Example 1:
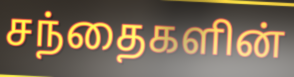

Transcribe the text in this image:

சந்தைகளின்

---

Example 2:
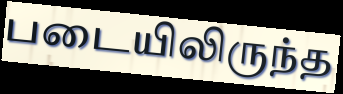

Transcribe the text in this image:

படையிலிருந்த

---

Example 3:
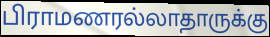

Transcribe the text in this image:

பிராமணரல்லாதாருக்கு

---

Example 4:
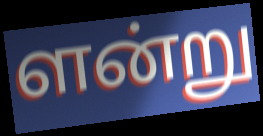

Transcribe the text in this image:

ளன்று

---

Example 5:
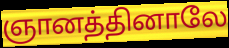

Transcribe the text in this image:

ஞானத்தினாலே